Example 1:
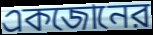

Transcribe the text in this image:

একজোনের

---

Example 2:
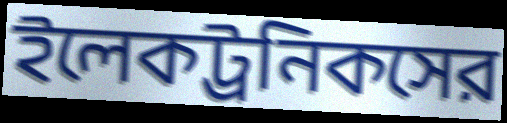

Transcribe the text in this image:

ইলেকট্রনিকসের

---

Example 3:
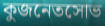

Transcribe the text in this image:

কুজনেতসোভ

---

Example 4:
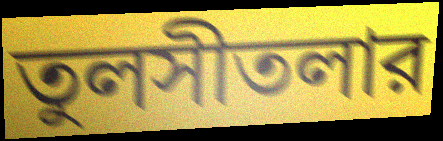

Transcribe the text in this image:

তুলসীতলার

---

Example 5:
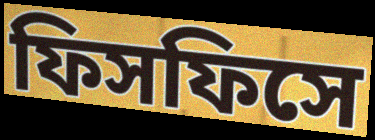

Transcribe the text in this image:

ফিসফিসে